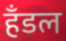
हॅंडल